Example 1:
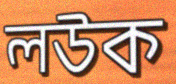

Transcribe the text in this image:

লউক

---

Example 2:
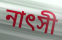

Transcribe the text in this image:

নাৎসী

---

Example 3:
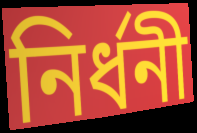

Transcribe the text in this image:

নির্ধনী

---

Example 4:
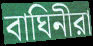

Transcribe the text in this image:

বাঘিনীরা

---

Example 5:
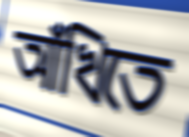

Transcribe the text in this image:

আঁখিতে